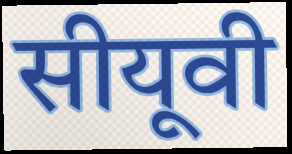
सीयूवी